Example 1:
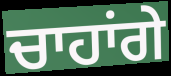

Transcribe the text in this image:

ਚਾਹਾਂਗੇ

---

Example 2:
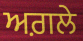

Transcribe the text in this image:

ਅਗ਼ਲੇ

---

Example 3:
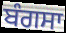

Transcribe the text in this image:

ਬੰਗਸਾ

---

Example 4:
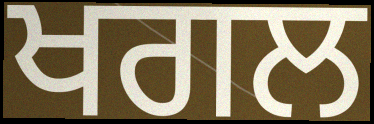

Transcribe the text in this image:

ਖਗਲ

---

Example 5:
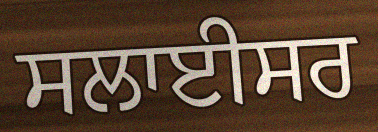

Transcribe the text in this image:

ਸਲਾਈਸਰ